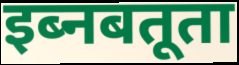
इब्नबतूता